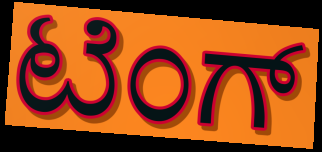
ಟೆಂಗ್